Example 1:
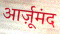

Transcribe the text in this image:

आर्ज़ूमंद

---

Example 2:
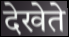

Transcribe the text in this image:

देखेते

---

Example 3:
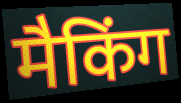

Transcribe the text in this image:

मैकिंग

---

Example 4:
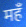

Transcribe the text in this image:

महँ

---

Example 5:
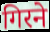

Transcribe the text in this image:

गिरने